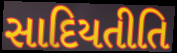
સાદિયતીતિ